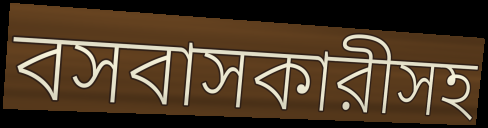
বসবাসকারীসহ